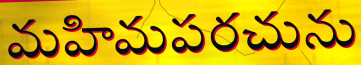
మహిమపరచును